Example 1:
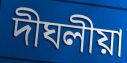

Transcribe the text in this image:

দীঘলীয়া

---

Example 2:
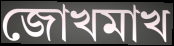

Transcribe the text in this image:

জোখমাখ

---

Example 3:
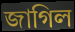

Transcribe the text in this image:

জাগিল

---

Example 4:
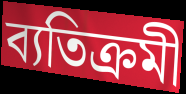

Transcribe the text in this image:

ব্যতিক্ৰমী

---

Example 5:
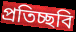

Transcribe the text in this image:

প্ৰতিচ্ছবি